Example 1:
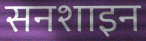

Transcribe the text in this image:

सनशाइन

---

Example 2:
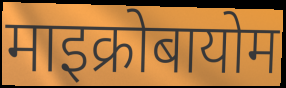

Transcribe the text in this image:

माइक्रोबायोम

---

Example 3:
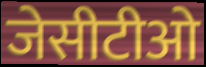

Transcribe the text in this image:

जेसीटीओ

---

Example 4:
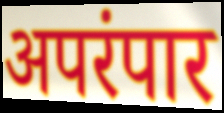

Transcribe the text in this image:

अपरंपार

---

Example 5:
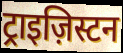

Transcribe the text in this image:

ट्राइज़िस्टन